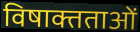
विषाक्तताओं